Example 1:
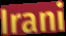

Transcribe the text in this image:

Irani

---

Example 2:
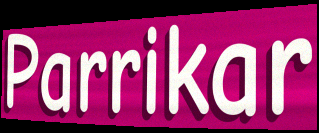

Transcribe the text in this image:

Parrikar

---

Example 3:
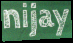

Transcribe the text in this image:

nijay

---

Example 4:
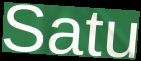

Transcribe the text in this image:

Satu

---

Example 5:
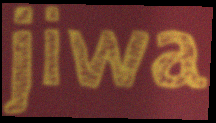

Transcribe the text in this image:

jiwa